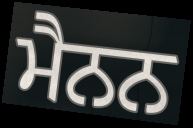
ਮੈਨਨ